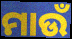
ମାଉଁ